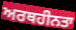
ਅਰਥਹੀਨਤਾ